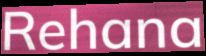
Rehana